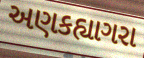
અણકહ્યાગરા